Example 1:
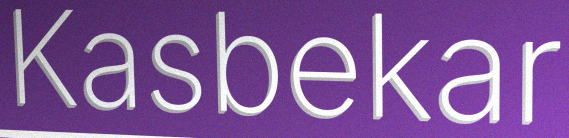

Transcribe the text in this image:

Kasbekar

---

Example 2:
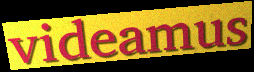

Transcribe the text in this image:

videamus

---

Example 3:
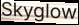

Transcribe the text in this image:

Skyglow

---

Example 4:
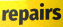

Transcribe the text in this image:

repairs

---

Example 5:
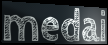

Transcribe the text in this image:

medai